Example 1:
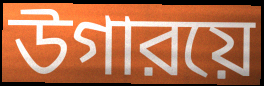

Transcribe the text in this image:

উগারয়ে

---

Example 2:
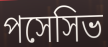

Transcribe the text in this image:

পসেসিভ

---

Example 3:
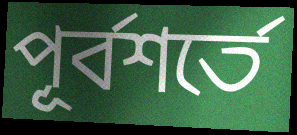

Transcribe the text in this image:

পূর্বশর্তে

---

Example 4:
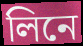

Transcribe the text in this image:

লিনে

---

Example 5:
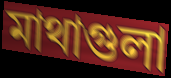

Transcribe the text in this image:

মাথাগুলা